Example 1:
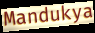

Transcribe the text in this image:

Mandukya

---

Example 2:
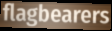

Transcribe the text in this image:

flagbearers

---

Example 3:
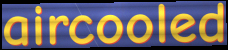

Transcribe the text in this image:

aircooled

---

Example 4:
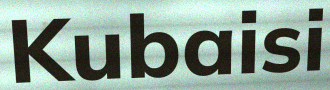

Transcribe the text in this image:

Kubaisi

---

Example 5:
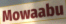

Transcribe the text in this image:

Mowaabu